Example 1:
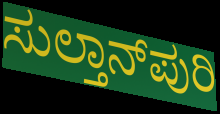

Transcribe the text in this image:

ಸುಲ್ತಾನ್‌ಪುರಿ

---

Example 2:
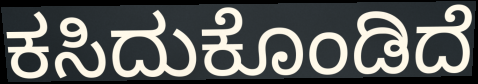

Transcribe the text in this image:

ಕಸಿದುಕೊಂಡಿದೆ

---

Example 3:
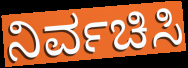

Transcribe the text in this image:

ನಿರ್ವಚಿಸಿ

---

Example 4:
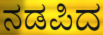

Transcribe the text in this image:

ನಡಪಿದ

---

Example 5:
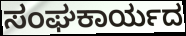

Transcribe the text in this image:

ಸಂಘಕಾರ್ಯದ